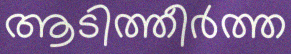
ആടിത്തീർത്ത